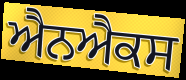
ਐਨਐਕਸ